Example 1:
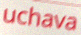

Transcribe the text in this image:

uchava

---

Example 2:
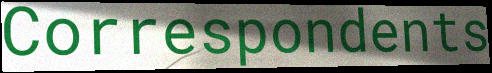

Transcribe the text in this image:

Correspondents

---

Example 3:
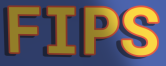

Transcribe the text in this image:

FIPS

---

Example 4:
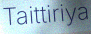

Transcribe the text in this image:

Taittiriya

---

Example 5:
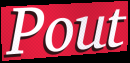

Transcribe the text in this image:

Pout